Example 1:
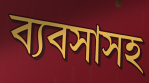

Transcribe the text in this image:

ব্যবসাসহ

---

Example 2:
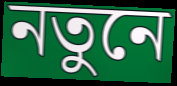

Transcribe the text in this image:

নতুনে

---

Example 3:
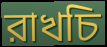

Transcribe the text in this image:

রাখচি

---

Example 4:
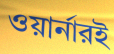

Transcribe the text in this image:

ওয়ার্নারই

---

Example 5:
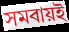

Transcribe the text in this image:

সমবায়ই